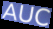
AUC